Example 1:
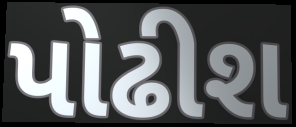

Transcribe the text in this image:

પોઢીશ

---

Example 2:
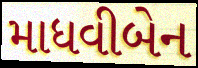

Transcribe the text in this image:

માધવીબેન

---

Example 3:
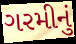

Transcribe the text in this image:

ગરમીનું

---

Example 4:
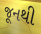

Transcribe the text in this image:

જૂનથી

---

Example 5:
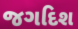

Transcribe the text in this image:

જગદિશ